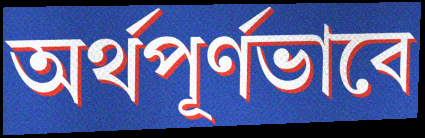
অর্থপূর্ণভাবে